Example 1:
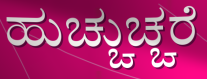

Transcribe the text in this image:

ಹುಚ್ಚುಚ್ಚರೆ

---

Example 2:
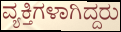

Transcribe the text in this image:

ವ್ಯಕ್ತಿಗಳಾಗಿದ್ದರು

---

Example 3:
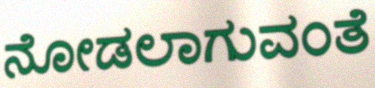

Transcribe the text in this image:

ನೋಡಲಾಗುವಂತೆ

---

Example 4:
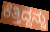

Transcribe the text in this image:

ಕೆತ್ತಿದ್ದನ್ನು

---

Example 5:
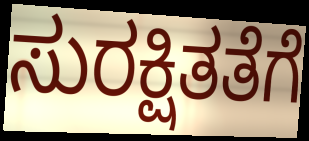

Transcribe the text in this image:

ಸುರಕ್ಷಿತತೆಗೆ